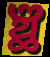
ଞ୍ଛ